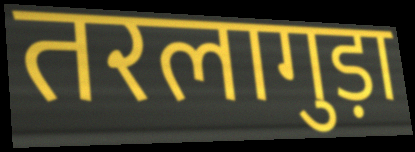
तरलागुड़ा